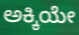
ಅಕ್ಕಿಯೇ